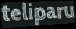
teliparu